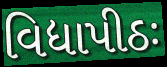
વિદ્યાપીઠઃ